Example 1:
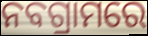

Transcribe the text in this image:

ନବଗ୍ରାମରେ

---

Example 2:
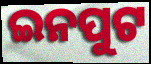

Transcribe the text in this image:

ଇନପୁଟ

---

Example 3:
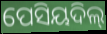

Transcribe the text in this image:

ପେସିୟଦିଲ୍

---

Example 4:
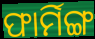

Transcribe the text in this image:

ଫାର୍ମିଙ୍ଗ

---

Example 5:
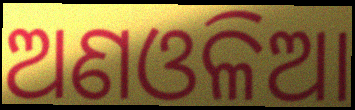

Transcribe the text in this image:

ଅଣଓଳିଆ